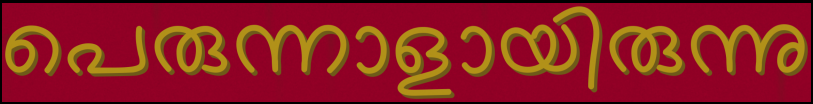
പെരുന്നാളായിരുന്നു